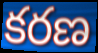
కరణ